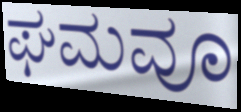
ಘಮವೂ